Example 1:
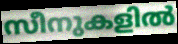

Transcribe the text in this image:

സീനുകളിൽ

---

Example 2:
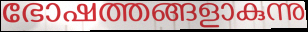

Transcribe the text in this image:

ഭോഷത്തങ്ങളാകുന്നു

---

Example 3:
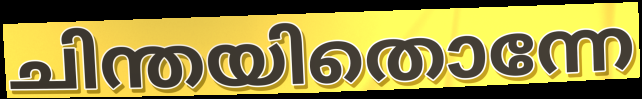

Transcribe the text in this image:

ചിന്തയിതൊന്നേ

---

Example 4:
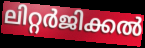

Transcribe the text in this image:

ലിറ്റർജിക്കൽ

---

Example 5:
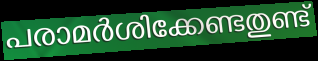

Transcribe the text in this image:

പരാമർശിക്കേണ്ടതുണ്ട്